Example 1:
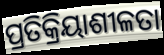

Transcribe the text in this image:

ପ୍ରତିକ୍ରିୟାଶୀଳତା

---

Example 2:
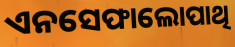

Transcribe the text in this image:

ଏନସେଫାଲୋପାଥି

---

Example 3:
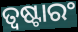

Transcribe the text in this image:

ତ୍ୱଷ୍ଟାରଂ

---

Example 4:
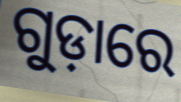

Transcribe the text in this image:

ଗୁଡ଼ାରେ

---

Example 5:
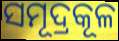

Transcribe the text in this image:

ସମୂଦ୍ରକୂଳ